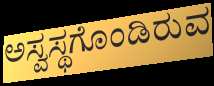
ಅಸ್ವಸ್ಥಗೊಂಡಿರುವ